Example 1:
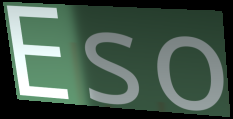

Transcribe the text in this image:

Eso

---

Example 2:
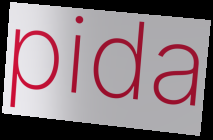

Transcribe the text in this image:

pida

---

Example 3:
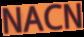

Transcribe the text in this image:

NACN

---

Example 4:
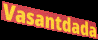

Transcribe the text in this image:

Vasantdada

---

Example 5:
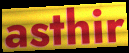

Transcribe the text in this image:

asthir